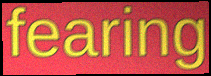
fearing